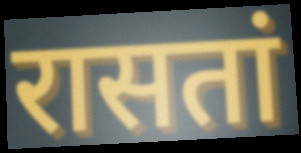
रासतां